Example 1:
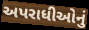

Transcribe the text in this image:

અપરાધીઓનું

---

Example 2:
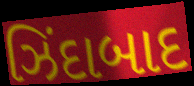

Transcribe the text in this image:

ઝિંદાબાદ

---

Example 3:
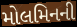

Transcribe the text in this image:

મોલમિનની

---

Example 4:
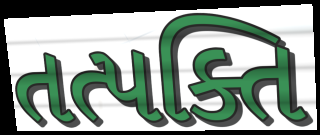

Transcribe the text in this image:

તત્પક્તિ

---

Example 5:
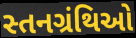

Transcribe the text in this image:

સ્તનગ્રંથિઓ